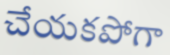
చేయకపోగా